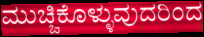
ಮುಚ್ಚಿಕೊಳ್ಳುವುದರಿಂದ